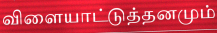
விளையாட்டுத்தனமும்